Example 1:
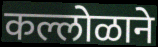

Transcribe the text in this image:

कल्लोळाने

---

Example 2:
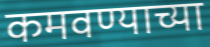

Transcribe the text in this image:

कमवण्याच्या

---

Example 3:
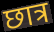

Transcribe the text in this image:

छात्र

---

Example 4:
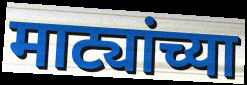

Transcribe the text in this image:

माट्यांच्या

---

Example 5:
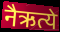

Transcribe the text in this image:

नैऋत्ये